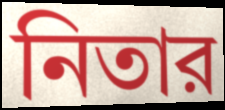
নিতার